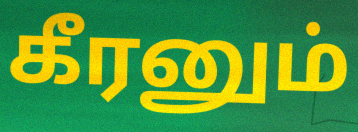
கீரனும்